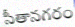
సీతానగరం